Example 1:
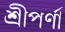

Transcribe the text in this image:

শ্রীপর্ণা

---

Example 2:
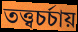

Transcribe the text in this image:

তত্ত্বচর্চায়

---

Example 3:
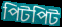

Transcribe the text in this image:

পিটপিট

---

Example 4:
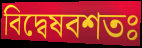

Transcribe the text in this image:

বিদ্বেষবশতঃ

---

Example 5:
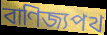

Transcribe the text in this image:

বাণিজ্যপথ